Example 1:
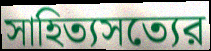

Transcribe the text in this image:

সাহিত্যসত্যের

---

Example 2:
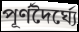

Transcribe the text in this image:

পূর্ণদৈর্ঘ্যে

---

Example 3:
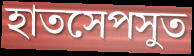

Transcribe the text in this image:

হাতসেপসুত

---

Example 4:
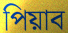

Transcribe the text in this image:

পিয়াব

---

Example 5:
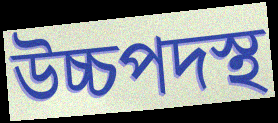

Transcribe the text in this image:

উচ্চপদস্থ